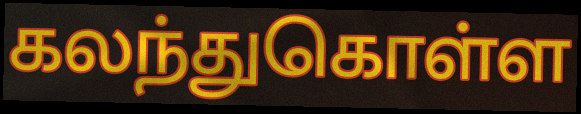
கலந்துகொள்ள